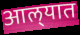
आल्यात